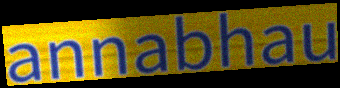
annabhau